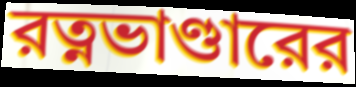
রত্নভাণ্ডারের